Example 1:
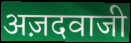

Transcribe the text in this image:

अज़दवाजी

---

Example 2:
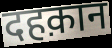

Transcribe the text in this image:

दहक़ान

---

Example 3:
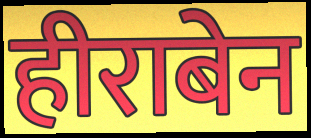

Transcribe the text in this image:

हीराबेन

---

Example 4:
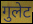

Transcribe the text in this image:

गुलेट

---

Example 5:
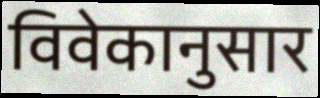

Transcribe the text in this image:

विवेकानुसार